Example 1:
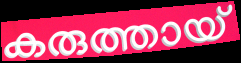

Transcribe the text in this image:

കരുത്തായ്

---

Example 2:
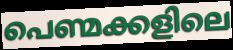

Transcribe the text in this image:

പെണ്മക്കളിലെ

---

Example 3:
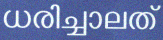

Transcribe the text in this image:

ധരിച്ചാലത്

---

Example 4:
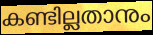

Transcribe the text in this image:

കണ്ടില്ലതാനും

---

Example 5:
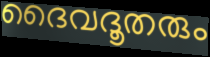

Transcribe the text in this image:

ദൈവദൂതരും